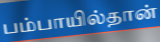
பம்பாயில்தான்